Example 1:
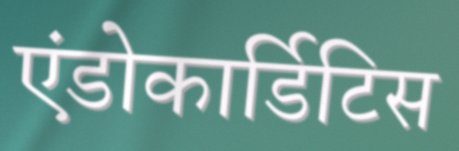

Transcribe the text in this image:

एंडोकार्डिटिस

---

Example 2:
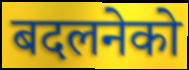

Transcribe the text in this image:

बदलनेको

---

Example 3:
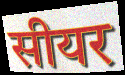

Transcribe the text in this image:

सीयर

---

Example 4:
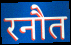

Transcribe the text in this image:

रनौत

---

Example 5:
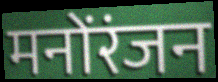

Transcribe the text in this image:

मनोंरंजन